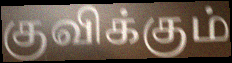
குவிக்கும்